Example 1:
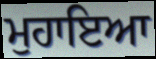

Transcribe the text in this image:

ਮੁਹਾਇਆ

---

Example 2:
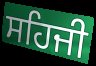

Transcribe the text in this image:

ਸਹਿਜੀ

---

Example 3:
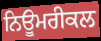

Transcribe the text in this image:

ਨਿਊਮਰੀਕਲ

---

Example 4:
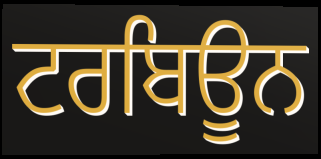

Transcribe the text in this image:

ਟਰਬਿਊਨ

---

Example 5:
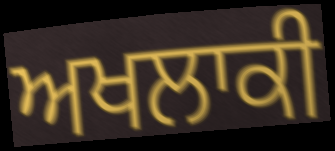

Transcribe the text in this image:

ਅਖਲਾਕੀ